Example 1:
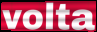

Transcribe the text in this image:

volta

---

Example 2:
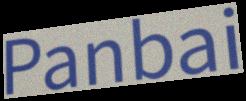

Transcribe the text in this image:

Panbai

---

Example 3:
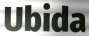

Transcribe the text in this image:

Ubida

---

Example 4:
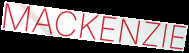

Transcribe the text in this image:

MACKENZIE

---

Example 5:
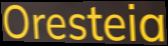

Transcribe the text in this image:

Oresteia